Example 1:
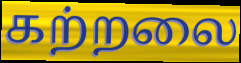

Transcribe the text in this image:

கற்றலை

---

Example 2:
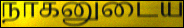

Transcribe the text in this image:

நாகனுடைய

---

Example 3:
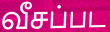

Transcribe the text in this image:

வீசப்பட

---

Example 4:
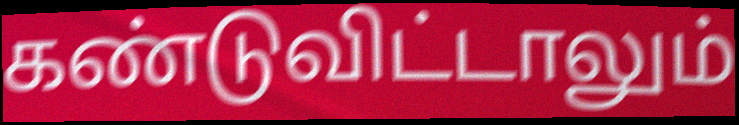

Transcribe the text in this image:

கண்டுவிட்டாலும்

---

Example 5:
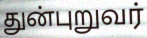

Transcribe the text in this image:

துன்புறுவர்